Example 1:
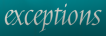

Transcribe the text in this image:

exceptions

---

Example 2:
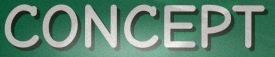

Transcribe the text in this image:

CONCEPT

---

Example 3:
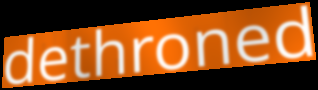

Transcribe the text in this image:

dethroned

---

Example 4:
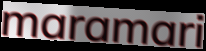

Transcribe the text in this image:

maramari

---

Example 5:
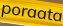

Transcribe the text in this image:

poraata